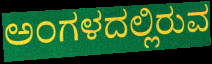
ಅಂಗಳದಲ್ಲಿರುವ